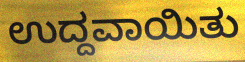
ಉದ್ದವಾಯಿತು